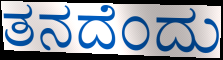
ತನದೆಂದು